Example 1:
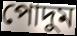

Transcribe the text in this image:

পোদুম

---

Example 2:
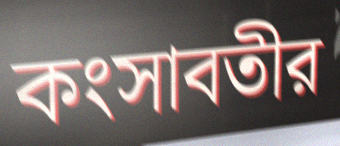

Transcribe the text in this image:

কংসাবতীর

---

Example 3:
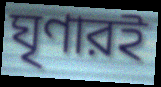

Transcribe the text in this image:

ঘৃণারই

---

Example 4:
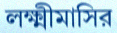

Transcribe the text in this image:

লক্ষ্মীমাসির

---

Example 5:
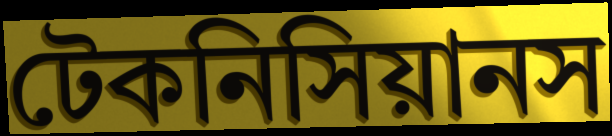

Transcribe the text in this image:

টেকনিসিয়ানস